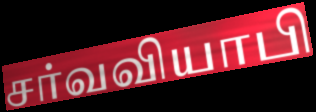
சர்வவியாபி